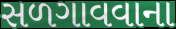
સળગાવવાના